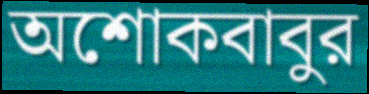
অশোকবাবুর